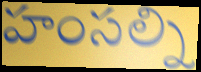
హంసల్ని